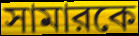
সামারকে